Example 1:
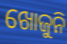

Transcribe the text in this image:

ଖୋଜୁନି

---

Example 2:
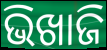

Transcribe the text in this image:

ଭିଖାଜି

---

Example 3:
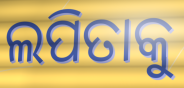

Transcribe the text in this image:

ଲପିତାକୁ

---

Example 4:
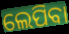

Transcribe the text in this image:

ଲେପିବା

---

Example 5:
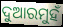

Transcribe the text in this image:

ଦୁଆରମୁହଁ